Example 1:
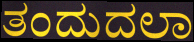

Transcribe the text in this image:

ತಂದುದಲಾ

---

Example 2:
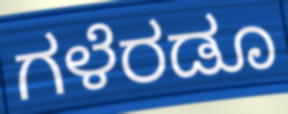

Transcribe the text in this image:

ಗಳೆರಡೂ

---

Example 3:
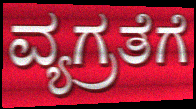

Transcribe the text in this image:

ವ್ಯಗ್ರತೆಗೆ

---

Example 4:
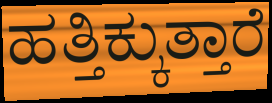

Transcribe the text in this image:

ಹತ್ತಿಕ್ಕುತ್ತಾರೆ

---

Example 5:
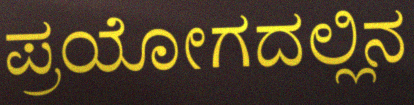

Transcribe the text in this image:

ಪ್ರಯೋಗದಲ್ಲಿನ